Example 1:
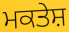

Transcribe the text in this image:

ਮਕਤੇਸ਼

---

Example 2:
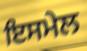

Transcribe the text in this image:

ਇਸਮੇਲ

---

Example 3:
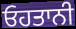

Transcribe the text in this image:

ਓਹਤਾਨੀ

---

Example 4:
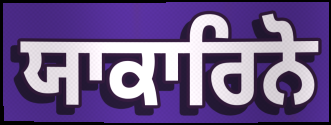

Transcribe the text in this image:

ਯਾਕਾਰਿਨੋ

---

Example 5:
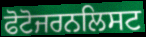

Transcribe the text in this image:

ਫੋਟੋਜਰਨਲਿਸਟ